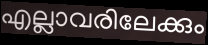
എല്ലാവരിലേക്കും